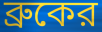
ব্রুকের